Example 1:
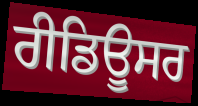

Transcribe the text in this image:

ਰੀਡਿਊਸਰ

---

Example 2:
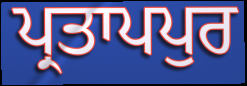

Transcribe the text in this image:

ਪ੍ਰਤਾਪਪੁਰ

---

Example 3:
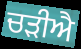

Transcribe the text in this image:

ਚੜੀਐ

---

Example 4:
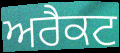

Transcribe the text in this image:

ਅਰੈਕਟ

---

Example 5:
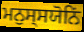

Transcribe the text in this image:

ਮਨੁਸ੍ਸਯੋਨਿਂ